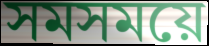
সমসময়ে